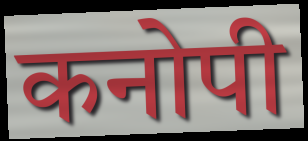
कनोपी